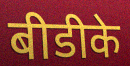
बीडीके